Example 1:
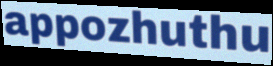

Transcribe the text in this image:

appozhuthu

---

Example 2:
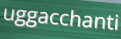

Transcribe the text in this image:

uggacchanti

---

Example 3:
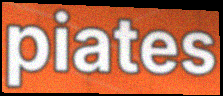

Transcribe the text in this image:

piates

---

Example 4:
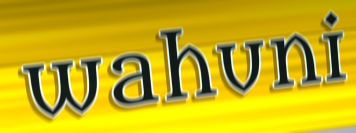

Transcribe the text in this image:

wahuni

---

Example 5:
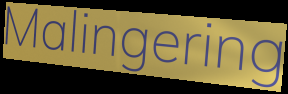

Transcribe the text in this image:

Malingering